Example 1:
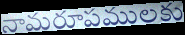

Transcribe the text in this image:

నామరూపములకు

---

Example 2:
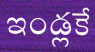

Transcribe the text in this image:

ఇండ్లకే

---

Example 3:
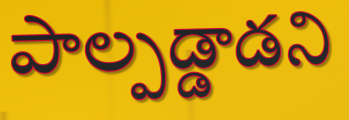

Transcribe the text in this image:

పాల్పడ్డాడని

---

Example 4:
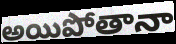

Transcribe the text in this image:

అయిపోతానా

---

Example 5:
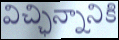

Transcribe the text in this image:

విచ్ఛిన్నానికి